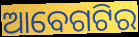
ଆବେଗଟିର